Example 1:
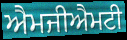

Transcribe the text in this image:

ਐਮਜੀਐਮਟੀ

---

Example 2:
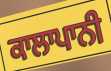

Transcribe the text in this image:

ਕਾਲਾਪਾਨੀ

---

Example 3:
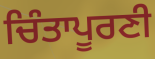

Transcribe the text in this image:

ਚਿੰਤਾਪੂਰਣੀ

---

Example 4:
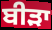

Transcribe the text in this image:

ਬੀੜਾ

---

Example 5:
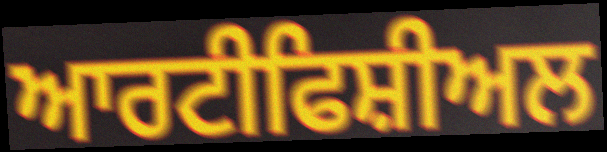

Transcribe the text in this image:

ਆਰਟੀਫਿਸ਼ੀਅਲ